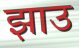
झाउ